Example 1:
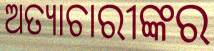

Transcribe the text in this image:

ଅତ୍ୟାଚାରୀଙ୍କର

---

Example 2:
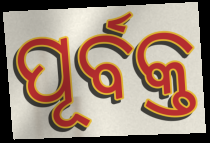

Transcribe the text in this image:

ପୂର୍ବକ୍ତ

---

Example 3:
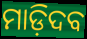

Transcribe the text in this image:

ମାଡ଼ିଦବ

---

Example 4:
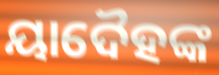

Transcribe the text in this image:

ୟାଦୈହଙ୍କ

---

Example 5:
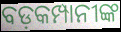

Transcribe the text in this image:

ବଡ଼କମ୍ପାନୀଙ୍କ